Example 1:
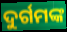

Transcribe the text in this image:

ଦୁର୍ଗମଙ୍କ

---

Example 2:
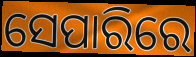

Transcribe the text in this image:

ସେପାରିରେ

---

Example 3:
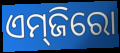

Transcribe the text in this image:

ଏମ୍‌ଜିରୋ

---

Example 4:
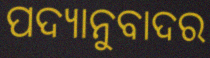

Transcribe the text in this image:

ପଦ୍ୟାନୁବାଦର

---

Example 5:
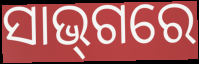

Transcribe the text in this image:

ସାଭ୍‌ଗରେ